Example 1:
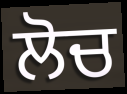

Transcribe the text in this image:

ਲੋਚ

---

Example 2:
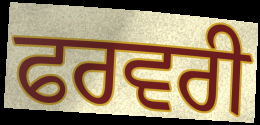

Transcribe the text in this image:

ਫਰਵਰੀ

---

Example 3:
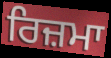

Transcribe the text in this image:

ਰਿਜ਼ਮਾ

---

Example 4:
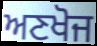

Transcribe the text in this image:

ਅਣਖੋਜ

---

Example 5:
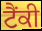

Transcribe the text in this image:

ਟੈਂਕੀ